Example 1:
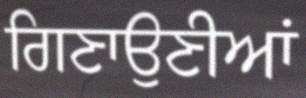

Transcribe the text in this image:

ਗਿਣਾਉਣੀਆਂ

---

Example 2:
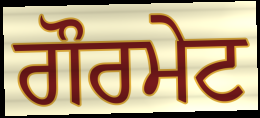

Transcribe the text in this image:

ਗੌਰਮੇਟ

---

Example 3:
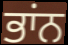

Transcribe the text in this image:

ਭਾਂਨ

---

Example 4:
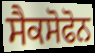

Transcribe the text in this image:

ਸੈਕਸੋਫੋਨ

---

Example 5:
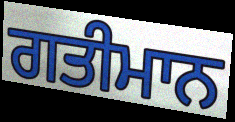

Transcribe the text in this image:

ਗਤੀਮਾਨ